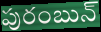
పురంబున్